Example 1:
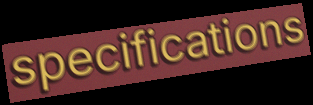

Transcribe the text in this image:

specifications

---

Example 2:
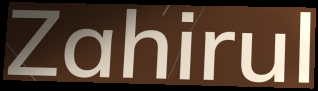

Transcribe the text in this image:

Zahirul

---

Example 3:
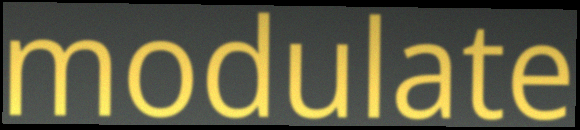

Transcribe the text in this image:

modulate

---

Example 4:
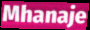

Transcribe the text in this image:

Mhanaje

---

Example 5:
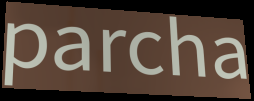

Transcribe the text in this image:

parcha